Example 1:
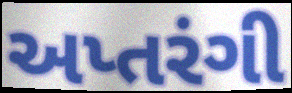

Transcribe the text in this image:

અપ્તરંગી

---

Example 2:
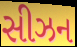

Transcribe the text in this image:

સીઝન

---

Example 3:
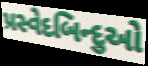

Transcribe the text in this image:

પ્રસ્વેદબિન્દુઓ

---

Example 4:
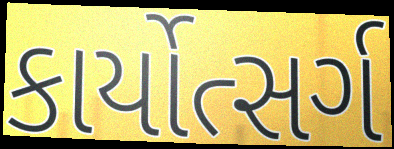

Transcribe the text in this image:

કાર્યોત્સર્ગ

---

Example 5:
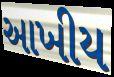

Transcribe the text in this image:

આખીય